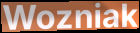
Wozniak